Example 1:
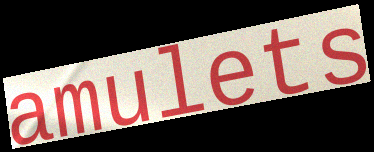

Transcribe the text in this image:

amulets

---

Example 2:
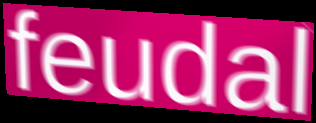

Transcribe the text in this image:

feudal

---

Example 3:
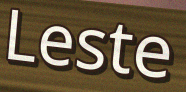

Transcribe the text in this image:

Leste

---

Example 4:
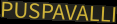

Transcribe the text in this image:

PUSPAVALLI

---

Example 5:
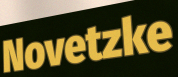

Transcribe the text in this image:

Novetzke